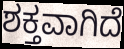
ಶಕ್ತವಾಗಿದೆ